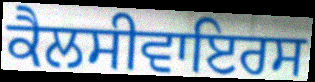
ਕੈਲਸੀਵਾਇਰਸ